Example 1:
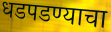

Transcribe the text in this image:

धडपडण्याचा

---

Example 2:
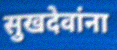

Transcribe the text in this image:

सुखदेवांना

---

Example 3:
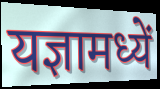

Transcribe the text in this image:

यज्ञामध्यें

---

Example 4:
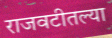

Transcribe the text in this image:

राजवटीतल्या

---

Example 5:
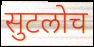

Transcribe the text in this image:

सुटलोच